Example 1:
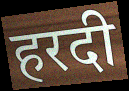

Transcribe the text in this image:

हरदी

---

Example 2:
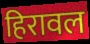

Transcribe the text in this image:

हिरावल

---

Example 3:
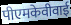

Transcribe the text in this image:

पीएमकेवीवाई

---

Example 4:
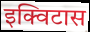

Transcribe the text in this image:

इक्विटास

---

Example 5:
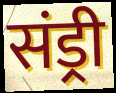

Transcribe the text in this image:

संड्री